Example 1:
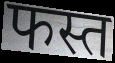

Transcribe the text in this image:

फस्त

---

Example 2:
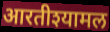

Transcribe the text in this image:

आरतीश्यामल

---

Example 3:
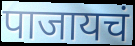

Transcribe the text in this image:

पाजायचं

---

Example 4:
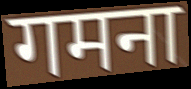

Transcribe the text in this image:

गमना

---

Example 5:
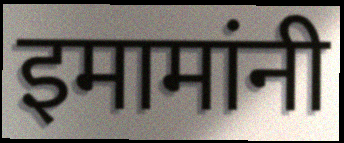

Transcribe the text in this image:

इमामांनी